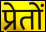
प्रेतों